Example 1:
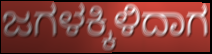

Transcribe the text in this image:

ಜಗಳಕ್ಕಿಳಿದಾಗ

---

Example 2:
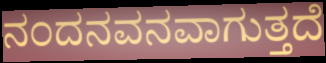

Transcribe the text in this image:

ನಂದನವನವಾಗುತ್ತದೆ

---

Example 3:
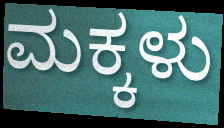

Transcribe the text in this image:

ಮಕ್ಕಳು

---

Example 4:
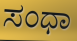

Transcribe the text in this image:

ಸಂಧಾ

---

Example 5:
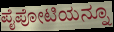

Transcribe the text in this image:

ಪೈಪೋಟಿಯನ್ನೂ